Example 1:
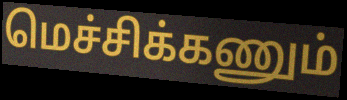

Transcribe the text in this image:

மெச்சிக்கணும்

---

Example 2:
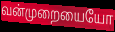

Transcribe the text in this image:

வன்முறையையோ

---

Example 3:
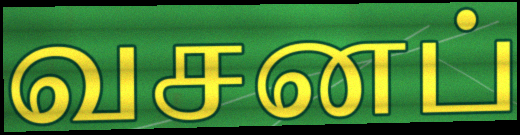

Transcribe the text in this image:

வசனப்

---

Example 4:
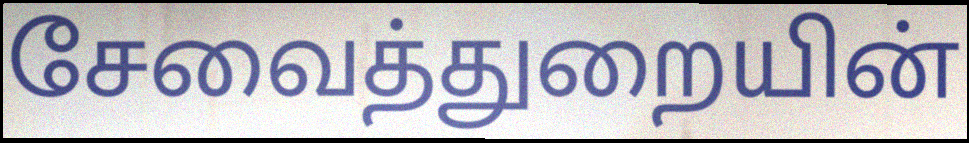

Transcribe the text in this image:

சேவைத்துறையின்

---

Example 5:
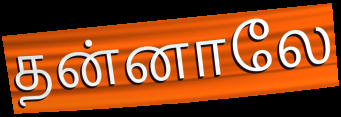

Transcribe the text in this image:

தன்னாலே